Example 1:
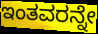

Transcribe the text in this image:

ಇಂತವರನ್ನೇ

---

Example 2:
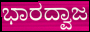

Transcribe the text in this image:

ಭಾರದ್ವಾಜ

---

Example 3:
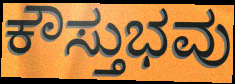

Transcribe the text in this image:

ಕೌಸ್ತುಭವು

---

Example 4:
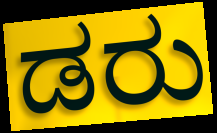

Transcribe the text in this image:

ಡರು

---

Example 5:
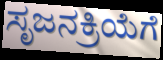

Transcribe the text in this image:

ಸೃಜನಕ್ರಿಯೆಗೆ